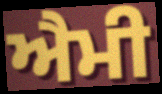
ਐਮੀ